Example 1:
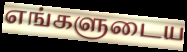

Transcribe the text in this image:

எங்களுடைய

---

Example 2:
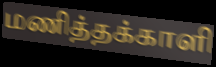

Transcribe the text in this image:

மணித்தக்காளி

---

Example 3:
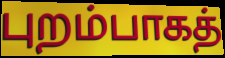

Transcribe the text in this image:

புறம்பாகத்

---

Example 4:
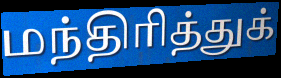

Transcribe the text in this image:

மந்திரித்துக்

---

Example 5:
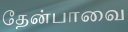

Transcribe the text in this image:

தேன்பாவை